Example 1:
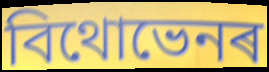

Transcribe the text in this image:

বিথোভেনৰ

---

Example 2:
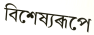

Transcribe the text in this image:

বিশেষ্যৰূপে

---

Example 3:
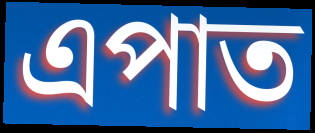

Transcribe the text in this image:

এপাত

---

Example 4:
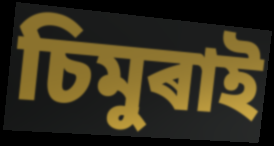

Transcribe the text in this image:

চিমুৰাই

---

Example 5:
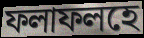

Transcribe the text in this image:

ফলাফলহে